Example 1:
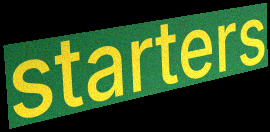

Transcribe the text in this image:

starters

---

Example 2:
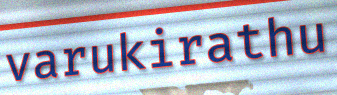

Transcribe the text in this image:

varukirathu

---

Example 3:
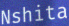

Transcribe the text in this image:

Nshita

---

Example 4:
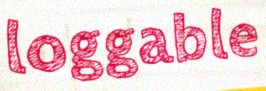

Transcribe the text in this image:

loggable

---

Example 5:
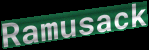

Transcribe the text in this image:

Ramusack